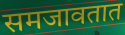
समजावतात